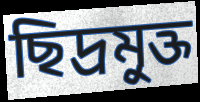
ছিদ্রমুক্ত